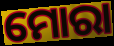
ମୋରା